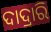
ଦାଦ୍ରାରି